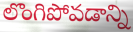
లొంగిపోవడాన్ని